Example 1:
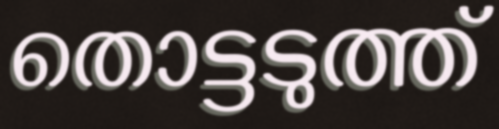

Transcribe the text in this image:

തൊട്ടടുത്ത്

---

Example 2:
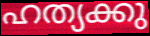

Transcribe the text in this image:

ഹത്യക്കു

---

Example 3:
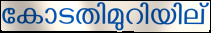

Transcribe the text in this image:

കോടതിമുറിയില്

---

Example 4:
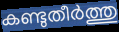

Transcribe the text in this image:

കണ്ടുതീർത്തു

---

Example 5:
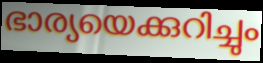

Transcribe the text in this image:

ഭാര്യയെക്കുറിച്ചും